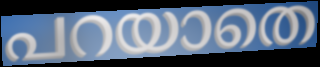
പറയാതെ